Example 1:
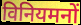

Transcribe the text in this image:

विनियमनों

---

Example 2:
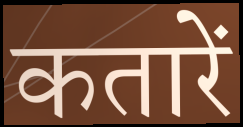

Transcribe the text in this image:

कतारें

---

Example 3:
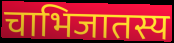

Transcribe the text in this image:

चाभिजातस्य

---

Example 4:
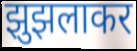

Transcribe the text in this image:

झुझलाकर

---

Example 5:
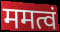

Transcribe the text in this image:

ममत्वं